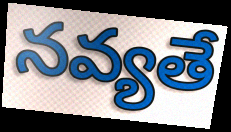
నవ్యతే